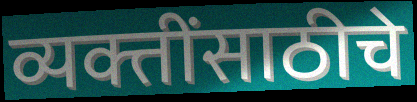
व्यक्तींसाठीचे